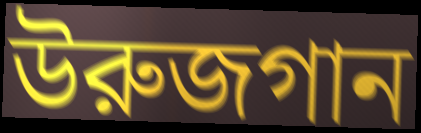
উরুজগান